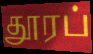
தூரப்